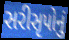
સરીસૃપોનું